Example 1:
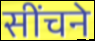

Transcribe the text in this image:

सींचने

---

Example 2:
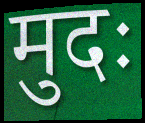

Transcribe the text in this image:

मुदः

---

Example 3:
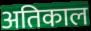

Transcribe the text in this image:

अतिकाल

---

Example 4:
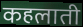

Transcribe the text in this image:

कहलाती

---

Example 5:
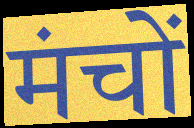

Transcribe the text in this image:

मंचों